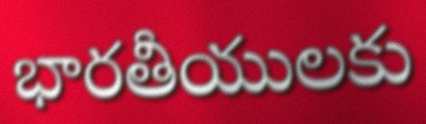
భారతీయులకు